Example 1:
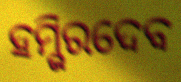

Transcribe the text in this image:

ହମ୍ଭିରଦେବ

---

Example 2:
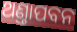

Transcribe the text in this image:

ଥଣ୍ତାପବନ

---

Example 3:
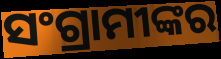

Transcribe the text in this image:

ସଂଗ୍ରାମୀଙ୍କର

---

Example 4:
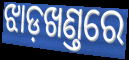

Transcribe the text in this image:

ଝାଡ଼ଖଣ୍ତରେ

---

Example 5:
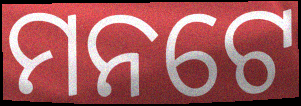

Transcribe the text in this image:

ମନଟେ